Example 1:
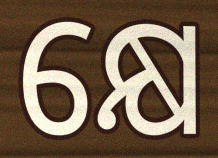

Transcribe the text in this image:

କ୍ଷେ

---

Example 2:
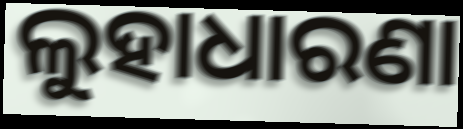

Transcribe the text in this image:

ଲୁହାଧାରଣା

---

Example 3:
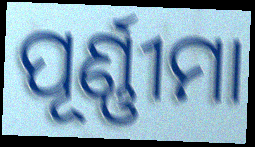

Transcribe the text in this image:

ପୂର୍ଣ୍ଣୀମା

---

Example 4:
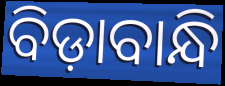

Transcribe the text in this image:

ବିଡ଼ାବାନ୍ଧି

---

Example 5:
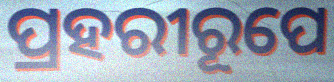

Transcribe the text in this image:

ପ୍ରହରୀରୂପେ